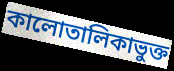
কালোতালিকাভুক্ত